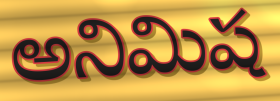
అనిమిష